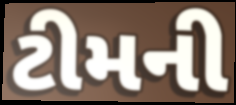
ટીમની